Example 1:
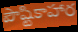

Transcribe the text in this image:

పౌష్టికాహార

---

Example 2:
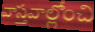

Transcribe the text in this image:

వాస్తవాల్లోంచి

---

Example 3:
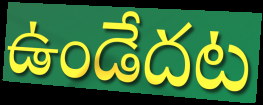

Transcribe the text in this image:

ఉండేదట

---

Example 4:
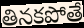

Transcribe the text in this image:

తినకపోతే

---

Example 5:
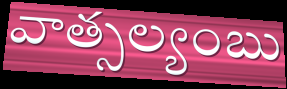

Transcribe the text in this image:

వాత్సల్యంబు